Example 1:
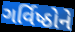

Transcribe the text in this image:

ગર્વિષ્ઠોને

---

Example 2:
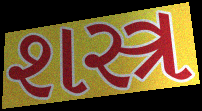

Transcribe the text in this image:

શસ્ત્ર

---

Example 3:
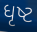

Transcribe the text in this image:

ધૃષ્ટ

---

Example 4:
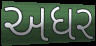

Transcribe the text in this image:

અધર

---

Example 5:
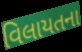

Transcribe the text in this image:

વિલાયતના